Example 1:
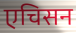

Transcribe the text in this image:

एचिसन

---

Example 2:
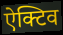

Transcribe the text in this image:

ऐक्टिव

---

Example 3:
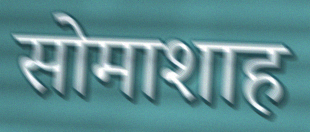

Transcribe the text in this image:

सोमाशाह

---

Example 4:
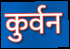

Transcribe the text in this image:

कुर्वन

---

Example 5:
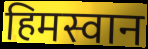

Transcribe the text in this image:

हिमस्वान